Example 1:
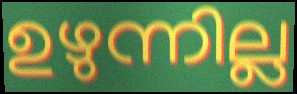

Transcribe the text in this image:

ഉഴുന്നില്ല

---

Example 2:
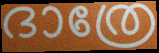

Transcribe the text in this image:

ദാത്രേ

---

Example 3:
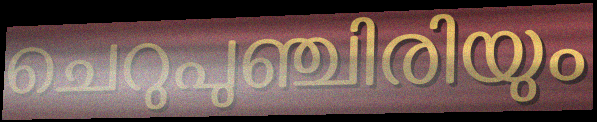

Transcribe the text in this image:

ചെറുപുഞ്ചിരിയും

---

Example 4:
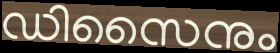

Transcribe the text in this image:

ഡിസൈനും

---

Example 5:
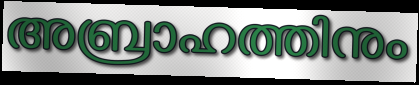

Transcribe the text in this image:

അബ്രാഹത്തിനും